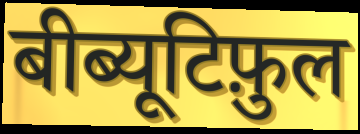
बीब्यूटिफ़ुल